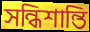
সন্ধিশান্তি